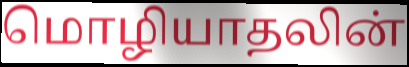
மொழியாதலின்